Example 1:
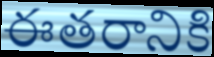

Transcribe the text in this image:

ఈతరానికి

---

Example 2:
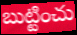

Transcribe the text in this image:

బుట్టించు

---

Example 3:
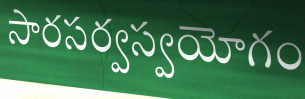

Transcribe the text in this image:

సారసర్వస్వయోగం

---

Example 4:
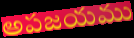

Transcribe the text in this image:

అపజయము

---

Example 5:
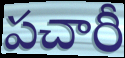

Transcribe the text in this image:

పచారీ